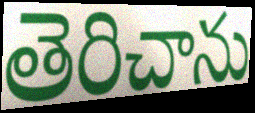
తెరిచాను